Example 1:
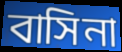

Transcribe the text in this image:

বাসিনা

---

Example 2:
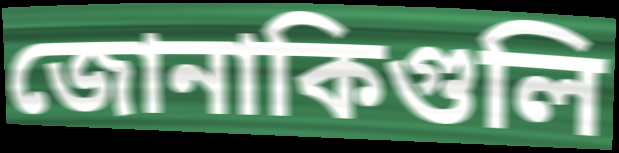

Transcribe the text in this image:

জোনাকিগুলি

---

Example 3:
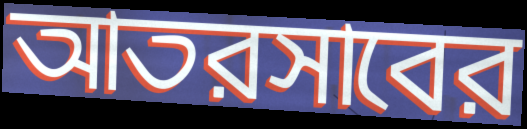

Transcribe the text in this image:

আতরসাবের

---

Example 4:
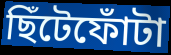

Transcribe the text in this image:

ছিঁটেফোঁটা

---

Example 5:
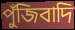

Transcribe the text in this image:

পুঁজিবাদি